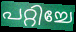
പറ്റിച്ചേ